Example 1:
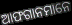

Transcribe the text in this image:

ଆଫଗାନମାନେ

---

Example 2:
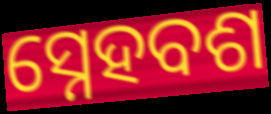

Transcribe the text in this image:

ସ୍ନେହବଶ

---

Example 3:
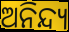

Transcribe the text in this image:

ଅନିନ୍ଦ୍ୟ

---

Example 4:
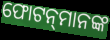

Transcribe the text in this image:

ଫୋଟନ୍‍ମାନଙ୍କ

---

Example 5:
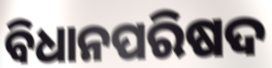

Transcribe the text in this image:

ବିଧାନପରିଷଦ